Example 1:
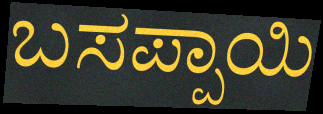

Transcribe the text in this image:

ಬಸಪ್ಪಾಯಿ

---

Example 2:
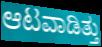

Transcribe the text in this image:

ಆಟವಾಡಿತ್ತು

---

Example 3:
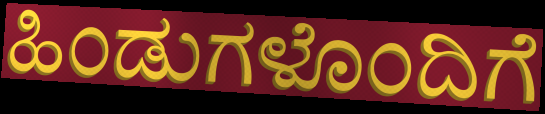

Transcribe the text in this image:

ಹಿಂಡುಗಳೊಂದಿಗೆ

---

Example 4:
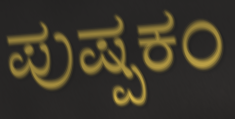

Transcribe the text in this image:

ಪುಷ್ಪಕಂ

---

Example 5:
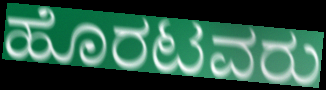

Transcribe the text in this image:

ಹೊರಟವರು